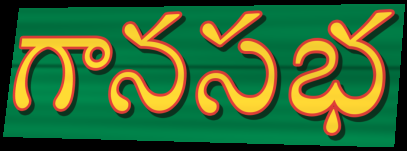
గానసభ